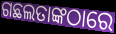
ଗଛଲତାଙ୍କଠାରେ